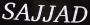
SAJJAD